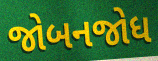
જોબનજોધ